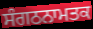
ਸੰਗਠਨਾਮਤਕ